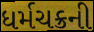
ધર્મચક્રની